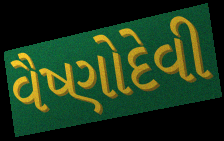
વૈષ્ણોદેવી